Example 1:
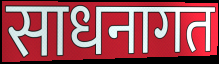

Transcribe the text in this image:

साधनागत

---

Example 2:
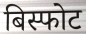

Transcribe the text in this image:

बिस्फोट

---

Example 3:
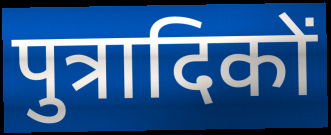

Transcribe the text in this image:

पुत्रादिकों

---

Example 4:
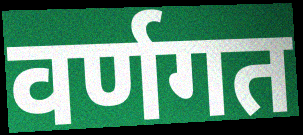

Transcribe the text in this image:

वर्णगत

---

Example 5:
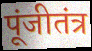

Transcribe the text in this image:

पूंजीतंत्र